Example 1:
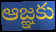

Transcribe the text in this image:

ఆజ్ఞకు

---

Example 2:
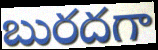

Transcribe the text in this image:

బురదగా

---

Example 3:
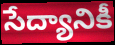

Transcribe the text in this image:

సేద్యానికీ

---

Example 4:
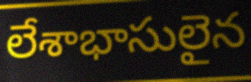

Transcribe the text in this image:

లేశాభాసులైన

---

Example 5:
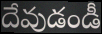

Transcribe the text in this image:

దేవుడండీ